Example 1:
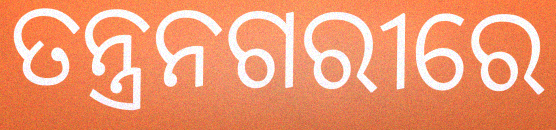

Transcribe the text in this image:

ତନ୍ତ୍ରନଗରୀରେ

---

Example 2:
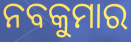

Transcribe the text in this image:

ନବକୁମାର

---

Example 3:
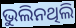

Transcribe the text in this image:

ଭୁଲିନଥିଲି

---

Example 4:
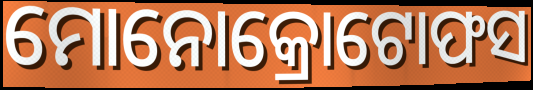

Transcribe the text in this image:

ମୋନୋକ୍ରୋଟୋଫସ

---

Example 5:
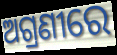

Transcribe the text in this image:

ଅଗ୍ରଣୀରେ